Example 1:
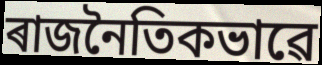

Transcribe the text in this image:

ৰাজনৈতিকভাৱে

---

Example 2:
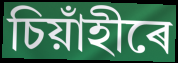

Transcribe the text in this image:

চিয়াঁহীৰে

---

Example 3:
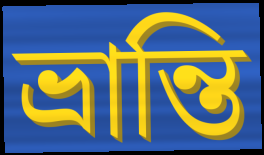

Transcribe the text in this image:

ভ্ৰান্তি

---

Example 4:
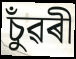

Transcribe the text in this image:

চুঁৱৰী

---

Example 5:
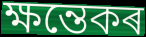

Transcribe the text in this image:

ক্ষন্তেকৰ